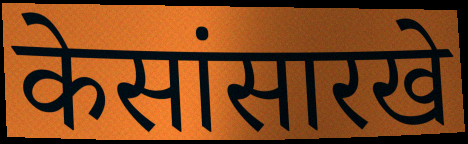
केसांसारखे